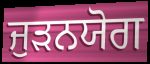
ਜੁੜਨਯੋਗ